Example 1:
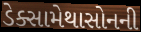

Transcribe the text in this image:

ડેક્સામેથાસોનની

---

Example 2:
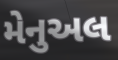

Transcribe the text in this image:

મેનુઅલ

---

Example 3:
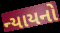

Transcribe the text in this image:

ન્યાયનો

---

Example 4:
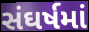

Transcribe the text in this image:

સંઘર્ષમાં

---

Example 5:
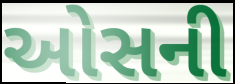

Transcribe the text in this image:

ઓસની